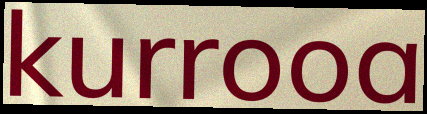
kurrooa